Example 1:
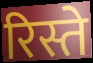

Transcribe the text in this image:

रिस्ते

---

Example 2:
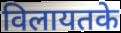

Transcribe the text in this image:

विलायतके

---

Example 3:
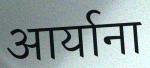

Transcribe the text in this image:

आर्याना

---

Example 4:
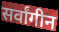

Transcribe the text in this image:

सर्वांगीन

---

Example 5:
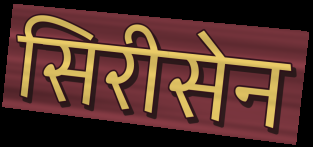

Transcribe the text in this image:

सिरीसेन